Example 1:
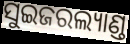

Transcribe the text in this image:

ସୁଇଜରଲ୍ୟାଣ୍ଡ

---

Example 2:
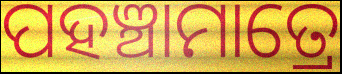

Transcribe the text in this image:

ପହଞ୍ଚାମାତ୍ରେ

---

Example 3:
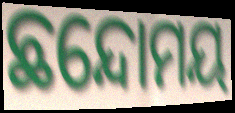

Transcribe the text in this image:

ଛନ୍ଦୋମୟ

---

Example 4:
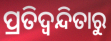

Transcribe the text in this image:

ପ୍ରତିଦ୍ୱନ୍ଦିତାରୁ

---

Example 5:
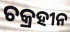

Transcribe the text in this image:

ଚକ୍ରହୀନ